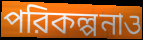
পরিকল্পনাও